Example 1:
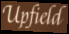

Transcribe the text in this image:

Upfield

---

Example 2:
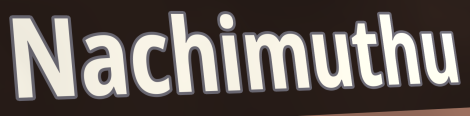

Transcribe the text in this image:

Nachimuthu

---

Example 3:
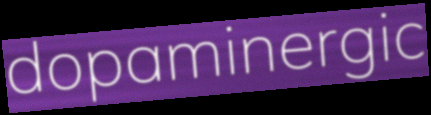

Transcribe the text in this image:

dopaminergic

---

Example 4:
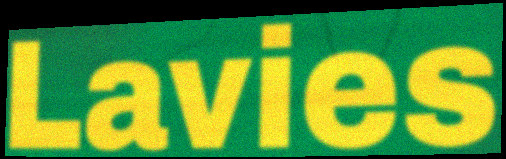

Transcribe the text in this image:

Lavies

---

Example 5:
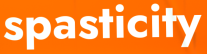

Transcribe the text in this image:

spasticity